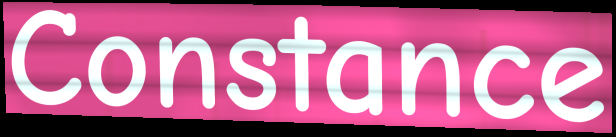
Constance